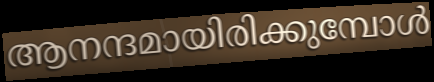
ആനന്ദമായിരിക്കുമ്പോൾ